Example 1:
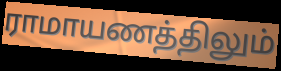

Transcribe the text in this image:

ராமாயணத்திலும்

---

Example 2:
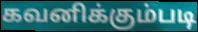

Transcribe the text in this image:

கவனிக்கும்படி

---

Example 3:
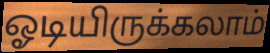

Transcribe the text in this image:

ஓடியிருக்கலாம்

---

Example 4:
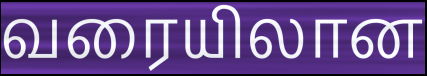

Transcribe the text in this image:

வரையிலான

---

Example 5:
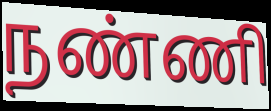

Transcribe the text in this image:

நண்ணி